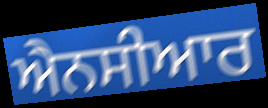
ਐਨਸੀਆਰ